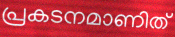
പ്രകടനമാണിത്